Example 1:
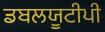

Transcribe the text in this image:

ਡਬਲਯੂਟੀਪੀ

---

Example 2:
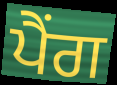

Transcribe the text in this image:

ਪੈਂਗ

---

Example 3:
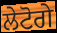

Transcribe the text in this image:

ਲੇਟੋਗੇ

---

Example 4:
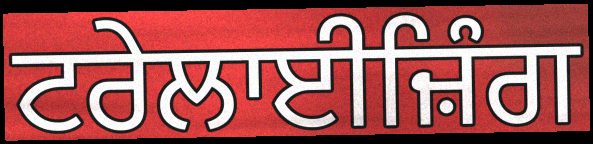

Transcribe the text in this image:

ਟਰੇਲਾਈਜ਼ਿੰਗ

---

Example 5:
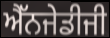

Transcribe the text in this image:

ਐੱਨਜੇਡੀਜੀ